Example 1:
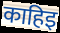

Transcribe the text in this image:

काहिइ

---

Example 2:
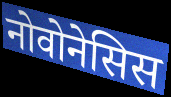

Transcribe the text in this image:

नोवोनेसिस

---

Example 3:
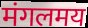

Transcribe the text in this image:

मंगलमय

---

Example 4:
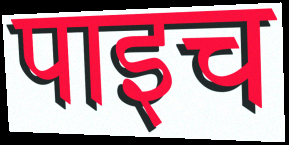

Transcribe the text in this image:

पाइच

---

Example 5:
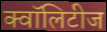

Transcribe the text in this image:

क्वॉलिटीज